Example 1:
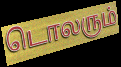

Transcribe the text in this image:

டொலரும்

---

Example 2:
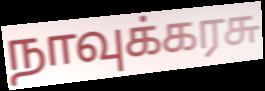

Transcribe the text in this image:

நாவுக்கரசு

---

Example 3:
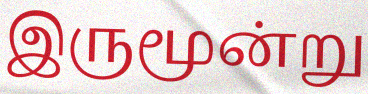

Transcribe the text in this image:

இருமூன்று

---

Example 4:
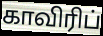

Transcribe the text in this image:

காவிரிப்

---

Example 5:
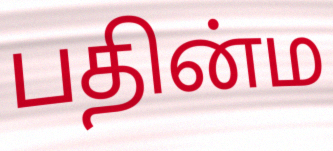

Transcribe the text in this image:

பதின்ம